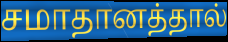
சமாதானத்தால்